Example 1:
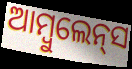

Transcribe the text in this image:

ଆମ୍ବୁଲେନ୍‌ସ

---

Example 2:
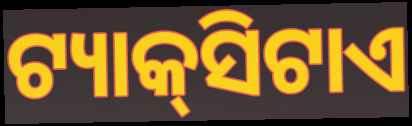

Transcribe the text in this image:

ଟ୍ୟାକ୍‌ସିଟାଏ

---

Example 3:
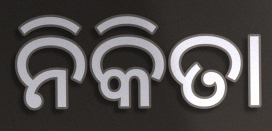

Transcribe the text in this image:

ନିକିତା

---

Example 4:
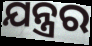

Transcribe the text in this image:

ଯନ୍ତ୍ରର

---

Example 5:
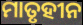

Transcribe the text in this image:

ମାତୃହୀନ